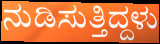
ನುಡಿಸುತ್ತಿದ್ದಳು